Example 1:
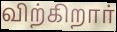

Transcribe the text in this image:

விற்கிறார்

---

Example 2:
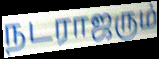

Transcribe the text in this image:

நடராஜரும்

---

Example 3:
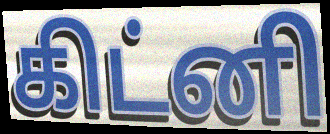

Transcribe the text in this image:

கிட்னி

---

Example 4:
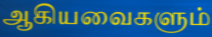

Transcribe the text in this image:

ஆகியவைகளும்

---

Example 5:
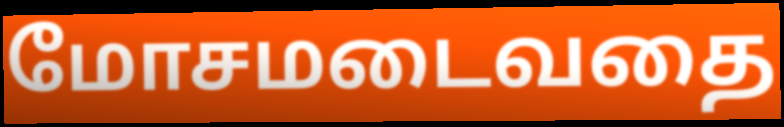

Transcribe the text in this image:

மோசமடைவதை